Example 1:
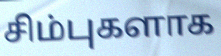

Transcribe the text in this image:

சிம்புகளாக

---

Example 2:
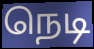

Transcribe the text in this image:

நெடி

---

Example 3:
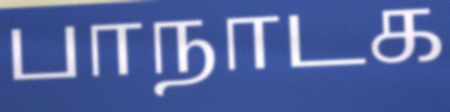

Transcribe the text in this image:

பாநாடக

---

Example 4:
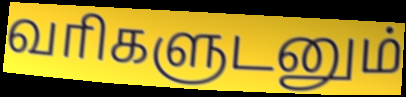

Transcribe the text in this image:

வரிகளுடனும்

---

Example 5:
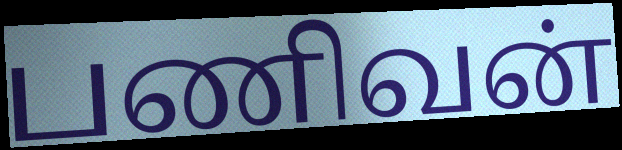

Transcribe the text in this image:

பணிவன்